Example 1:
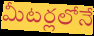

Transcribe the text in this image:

మీటర్లలోనే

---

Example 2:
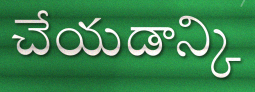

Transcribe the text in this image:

చేయడాన్కి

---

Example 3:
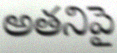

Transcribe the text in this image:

అతనిపై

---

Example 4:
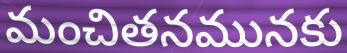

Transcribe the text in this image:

మంచితనమునకు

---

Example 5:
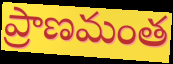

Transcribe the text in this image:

ప్రాణమంత